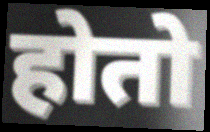
होतो